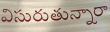
విసురుతున్నారా